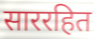
साररहित